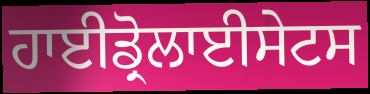
ਹਾਈਡ੍ਰੋਲਾਈਸੇਟਸ